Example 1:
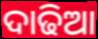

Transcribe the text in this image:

ଦାଢିଆ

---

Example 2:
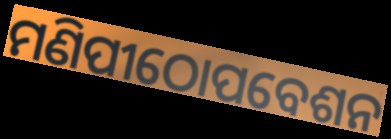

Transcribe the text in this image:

ମଣିପୀଠୋପବେଶନ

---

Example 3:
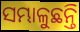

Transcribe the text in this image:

ସମ୍ଭାଳୁଛନ୍ତି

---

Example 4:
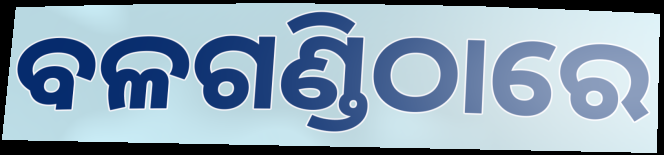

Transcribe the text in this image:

ବଳଗଣ୍ଡିଠାରେ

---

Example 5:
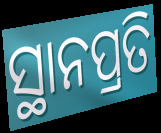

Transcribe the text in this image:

ସ୍ଥାନପ୍ରତି